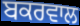
ਬਕਰਵਾਲ